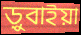
ড়ুবাইয়া